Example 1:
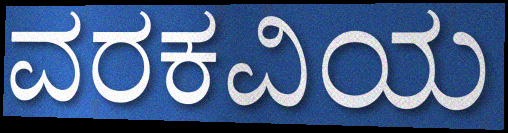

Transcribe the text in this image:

ವರಕವಿಯ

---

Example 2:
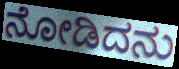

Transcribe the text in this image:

ನೋಡಿದನು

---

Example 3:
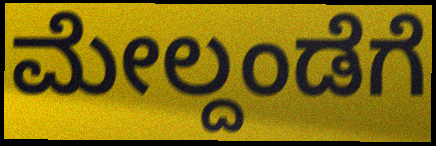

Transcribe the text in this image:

ಮೇಲ್ದಂಡೆಗೆ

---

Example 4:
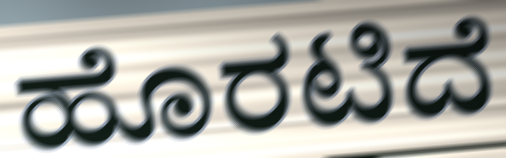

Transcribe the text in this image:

ಹೊರಟಿದೆ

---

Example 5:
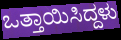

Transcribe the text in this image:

ಒತ್ತಾಯಿಸಿದ್ದಳು